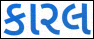
કારલ